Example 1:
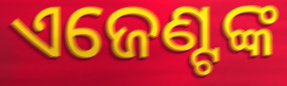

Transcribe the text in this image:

ଏଜେଣ୍ଟଙ୍କ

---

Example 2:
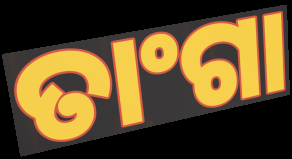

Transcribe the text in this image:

ତାଂଗା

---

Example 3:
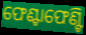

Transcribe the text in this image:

ଫେଣ୍ଟାଫେଣ୍ଟି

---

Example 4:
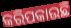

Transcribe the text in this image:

କରିପକାଉଛି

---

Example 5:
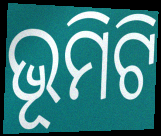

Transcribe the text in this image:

ଭୂମିଟି